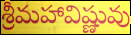
శ్రీమహావిష్ణువు